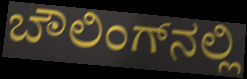
ಬೌಲಿಂಗ್‌ನಲ್ಲಿ